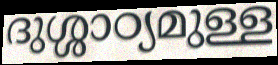
ദുശ്ശാഠ്യമുള്ള